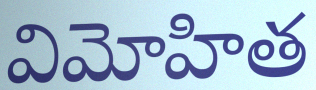
విమోహిత